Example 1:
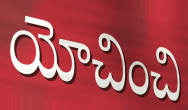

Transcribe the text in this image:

యోచించి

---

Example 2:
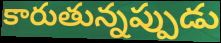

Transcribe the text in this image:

కారుతున్నప్పుడు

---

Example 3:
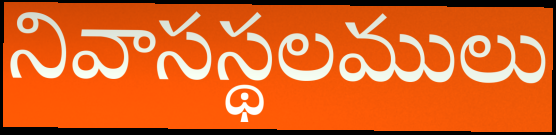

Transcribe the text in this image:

నివాసస్థలములు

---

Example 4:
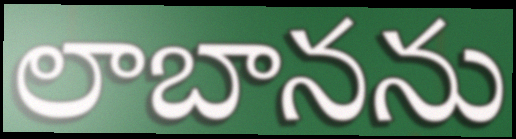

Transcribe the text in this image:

లాబానను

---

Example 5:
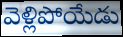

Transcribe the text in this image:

వెళ్లిపోయేడు